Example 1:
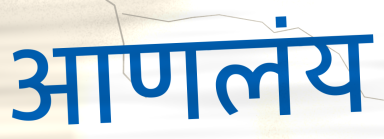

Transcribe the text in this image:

आणलंय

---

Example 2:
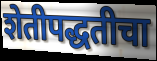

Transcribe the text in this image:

शेतीपद्धतीचा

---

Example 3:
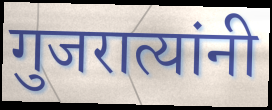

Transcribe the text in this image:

गुजरात्यांनी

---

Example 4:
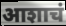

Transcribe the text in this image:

आशाचं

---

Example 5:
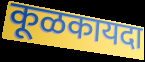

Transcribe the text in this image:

कूळकायदा